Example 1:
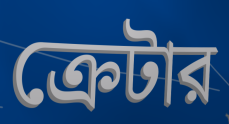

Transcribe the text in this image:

ক্রেটার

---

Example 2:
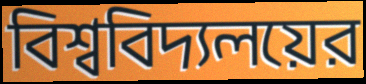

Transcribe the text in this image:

বিশ্ববিদ্যলয়ের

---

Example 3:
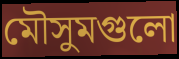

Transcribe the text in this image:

মৌসুমগুলো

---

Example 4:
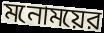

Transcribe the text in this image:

মনোময়ের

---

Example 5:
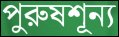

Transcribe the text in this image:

পুরুষশূন্য